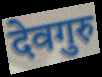
देवगुरु